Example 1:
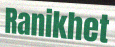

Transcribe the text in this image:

Ranikhet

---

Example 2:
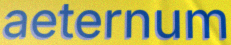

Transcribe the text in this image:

aeternum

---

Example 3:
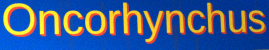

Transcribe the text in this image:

Oncorhynchus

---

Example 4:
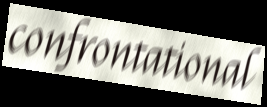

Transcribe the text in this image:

confrontational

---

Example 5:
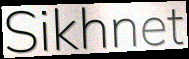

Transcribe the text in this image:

Sikhnet